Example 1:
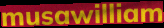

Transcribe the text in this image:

musawilliam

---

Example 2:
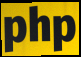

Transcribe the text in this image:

php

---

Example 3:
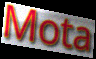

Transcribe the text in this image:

Mota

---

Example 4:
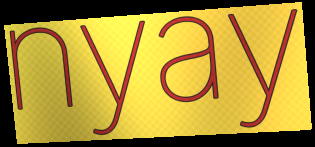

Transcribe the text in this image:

nyay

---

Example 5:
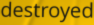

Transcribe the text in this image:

destroyed